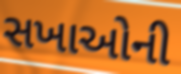
સખાઓની